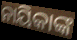
ନାୟିକାଙ୍କ